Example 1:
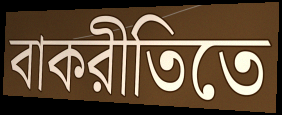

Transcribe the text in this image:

বাকরীতিতে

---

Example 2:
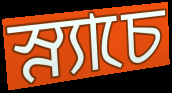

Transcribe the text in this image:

স্ন্যাচে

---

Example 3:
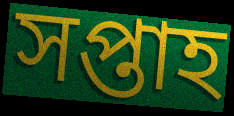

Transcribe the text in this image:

সপ্তাহ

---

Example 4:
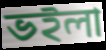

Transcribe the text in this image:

ভইলা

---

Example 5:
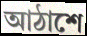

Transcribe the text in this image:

আঠাশে